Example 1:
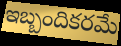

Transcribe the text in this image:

ఇబ్బందికరమే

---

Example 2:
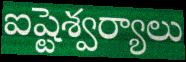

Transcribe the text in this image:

ఐష్టెశ్వర్యాలు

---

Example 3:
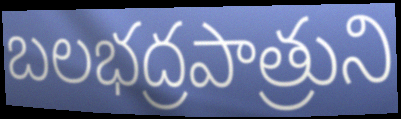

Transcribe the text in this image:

బలభద్రపాత్రుని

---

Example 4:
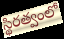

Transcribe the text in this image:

స్థిరత్వంలో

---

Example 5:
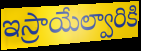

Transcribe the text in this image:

ఇస్రాయేల్వారికి